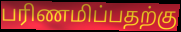
பரிணமிப்பதற்கு